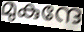
മുകുന്ദേ